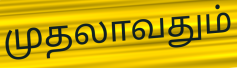
முதலாவதும்